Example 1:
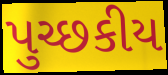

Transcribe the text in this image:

પુચ્છકીય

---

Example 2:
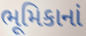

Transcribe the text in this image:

ભૂમિકાનાં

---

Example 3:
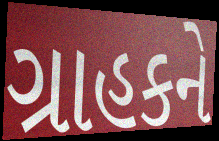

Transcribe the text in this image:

ગ્રાહકને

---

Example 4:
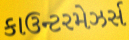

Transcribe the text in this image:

કાઉન્ટરમેઝર્સ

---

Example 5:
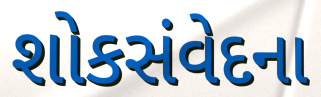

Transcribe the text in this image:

શોકસંવેદના